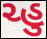
ચ્હુ